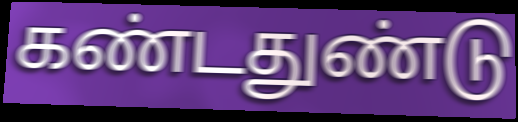
கண்டதுண்டு